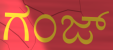
ಗಂಜ್